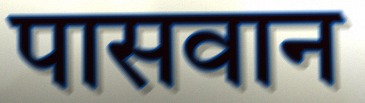
पासवान